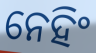
ନେହିଂ